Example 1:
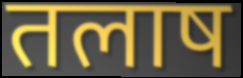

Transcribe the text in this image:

तलाष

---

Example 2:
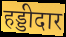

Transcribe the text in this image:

हड्डीदार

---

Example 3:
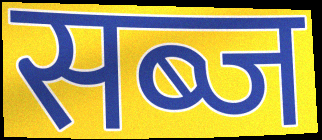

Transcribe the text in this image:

सब्ज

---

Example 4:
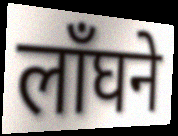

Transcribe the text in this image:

लाँघने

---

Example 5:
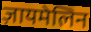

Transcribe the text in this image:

ज़ायमेलिन